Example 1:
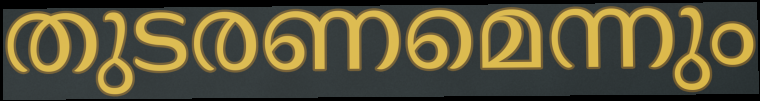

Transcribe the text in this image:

തുടരണമെന്നും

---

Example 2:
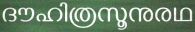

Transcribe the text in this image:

ദൗഹിത്രസൂനുരഥ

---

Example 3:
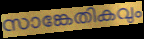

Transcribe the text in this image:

സാങ്കേതികവും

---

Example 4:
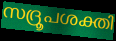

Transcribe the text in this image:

സദ്രൂപശക്തി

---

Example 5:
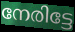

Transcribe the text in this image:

നേരിട്ടേ